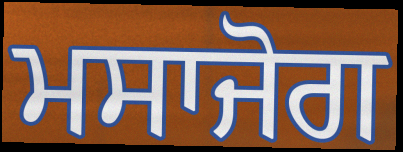
ਮਸਾਜੋਗ